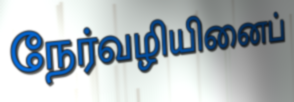
நேர்வழியினைப்